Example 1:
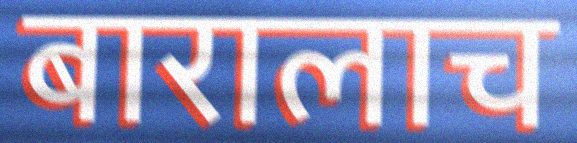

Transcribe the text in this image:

बारालाच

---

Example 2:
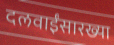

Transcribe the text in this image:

दलवाईंसारख्या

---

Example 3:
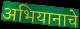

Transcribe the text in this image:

अभियानाचे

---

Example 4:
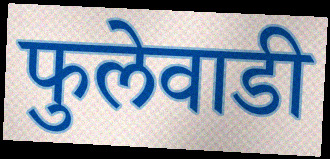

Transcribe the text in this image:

फुलेवाडी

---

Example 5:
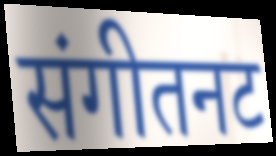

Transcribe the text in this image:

संगीतनट